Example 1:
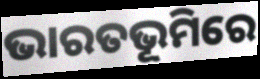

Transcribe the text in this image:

ଭାରତଭୂମିରେ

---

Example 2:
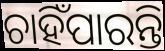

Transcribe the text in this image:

ଚାହିଁପାରନ୍ତି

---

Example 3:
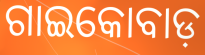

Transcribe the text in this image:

ଗାଇକୋବାଡ଼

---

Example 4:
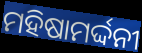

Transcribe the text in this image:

ମହିଷାମର୍ଦ୍ଦନୀ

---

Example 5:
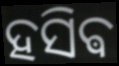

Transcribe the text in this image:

ହସିଵ